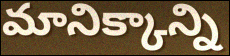
మానిక్కాన్ని